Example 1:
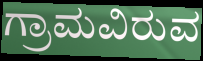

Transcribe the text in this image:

ಗ್ರಾಮವಿರುವ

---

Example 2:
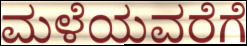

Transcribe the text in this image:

ಮಳೆಯವರೆಗೆ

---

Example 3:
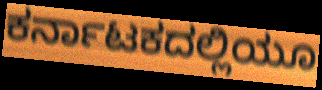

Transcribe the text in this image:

ಕರ್ನಾಟಕದಲ್ಲಿಯೂ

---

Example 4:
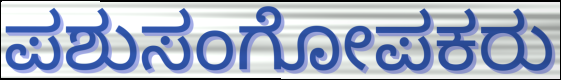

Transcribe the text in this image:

ಪಶುಸಂಗೋಪಕರು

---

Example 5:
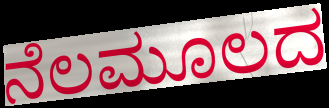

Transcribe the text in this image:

ನೆಲಮೂಲದ